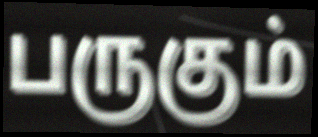
பருகும்